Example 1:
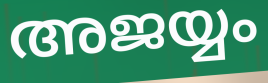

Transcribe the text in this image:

അജയ്യം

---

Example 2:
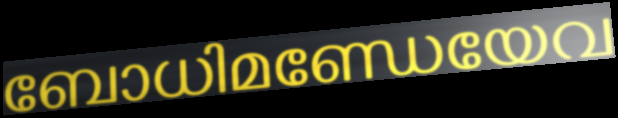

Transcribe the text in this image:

ബോധിമണ്ഡേയേവ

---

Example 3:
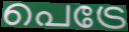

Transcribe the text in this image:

പെട്രേ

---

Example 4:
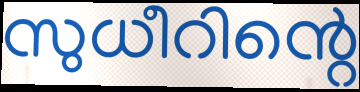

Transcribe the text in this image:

സുധീറിന്റെ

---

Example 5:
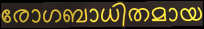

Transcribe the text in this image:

രോഗബാധിതമായ